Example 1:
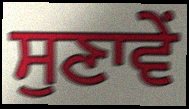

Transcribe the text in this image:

ਸੁਣਾਵੇਂ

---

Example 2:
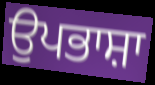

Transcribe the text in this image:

ਉਪਭਾਸ਼ਾ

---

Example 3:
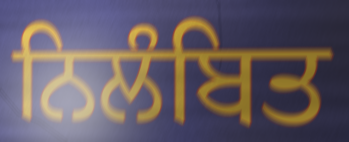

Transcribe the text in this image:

ਨਿਲੰਬਿਤ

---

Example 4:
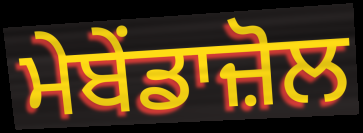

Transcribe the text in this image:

ਮੇਬੇਂਡਾਜ਼ੋਲ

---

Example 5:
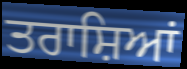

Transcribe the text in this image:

ਤਰਾਸ਼ਿਆਂ